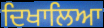
ਦਿਖਾਲਿਆ